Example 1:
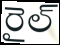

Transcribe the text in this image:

రైల్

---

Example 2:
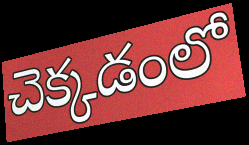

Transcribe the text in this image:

చెక్కడంలో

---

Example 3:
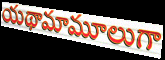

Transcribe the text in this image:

యథామామూలుగా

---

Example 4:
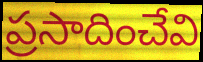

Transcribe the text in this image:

ప్రసాదించేవి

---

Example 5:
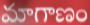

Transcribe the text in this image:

మాగాణం